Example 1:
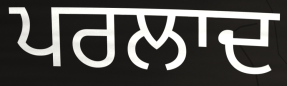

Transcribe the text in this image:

ਪਰਲਾਦ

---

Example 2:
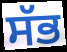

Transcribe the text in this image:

ਸੱਭ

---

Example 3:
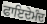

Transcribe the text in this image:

ਫਾਇਦੇਮੰਦ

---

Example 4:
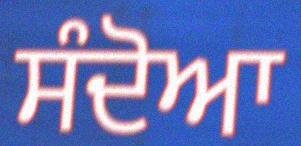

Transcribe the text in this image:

ਸੰਦੋਆ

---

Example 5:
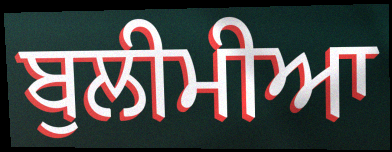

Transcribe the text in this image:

ਬੁਲੀਮੀਆ